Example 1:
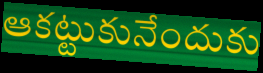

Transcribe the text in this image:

ఆకట్టుకునేందుకు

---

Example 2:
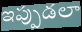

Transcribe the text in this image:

ఇప్పుడలా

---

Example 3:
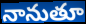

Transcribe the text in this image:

నానుతూ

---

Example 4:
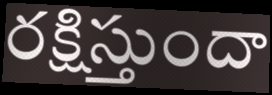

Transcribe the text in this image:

రక్షిస్తుందా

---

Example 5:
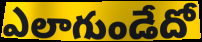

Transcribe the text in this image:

ఎలాగుండేదో